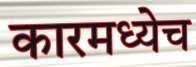
कारमध्येच